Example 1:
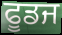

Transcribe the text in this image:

ਫੂਡਜ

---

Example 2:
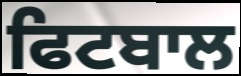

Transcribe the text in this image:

ਫਿਟਬਾਲ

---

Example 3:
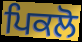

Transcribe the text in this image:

ਪਿਕਲੋ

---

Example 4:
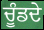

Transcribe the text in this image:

ਚੂੰਡਦੇ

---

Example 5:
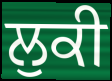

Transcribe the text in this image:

ਲੁਕੀ